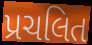
પ્રચલિત